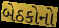
બેઠકોનો